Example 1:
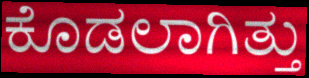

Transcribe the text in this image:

ಕೊಡಲಾಗಿತ್ತು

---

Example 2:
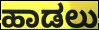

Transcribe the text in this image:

ಹಾಡಲು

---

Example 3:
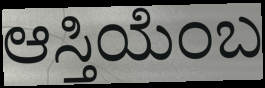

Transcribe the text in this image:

ಆಸ್ತಿಯೆಂಬ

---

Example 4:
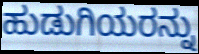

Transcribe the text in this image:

ಹುಡುಗಿಯರನ್ನು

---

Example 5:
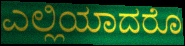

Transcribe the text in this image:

ಎಲ್ಲಿಯಾದರೊ